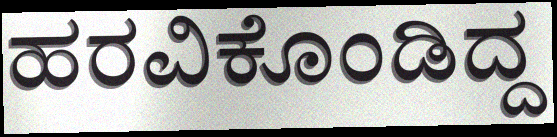
ಹರವಿಕೊಂಡಿದ್ದ